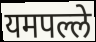
यमपल्ले